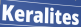
Keralites